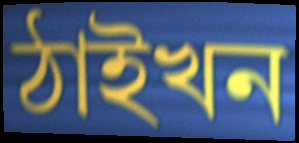
ঠাইখন